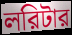
লরিটার